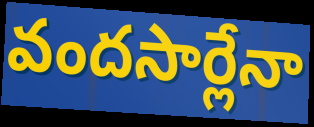
వందసార్లేనా